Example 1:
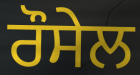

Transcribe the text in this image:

ਰੌਸੇਲ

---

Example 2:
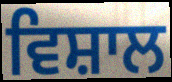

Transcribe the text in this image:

ਵਿਸ਼ਾਲ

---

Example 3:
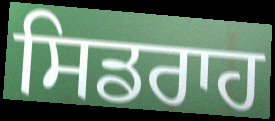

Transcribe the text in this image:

ਸਿਡਰਾਹ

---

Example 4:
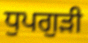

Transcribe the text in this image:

ਧੁਪਗੁੜੀ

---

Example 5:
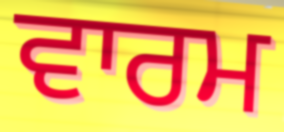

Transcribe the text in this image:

ਵਾਰਮ